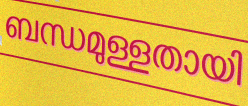
ബന്ധമുള്ളതായി